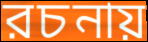
রচনায়